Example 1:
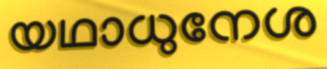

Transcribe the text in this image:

യഥാധുനേശ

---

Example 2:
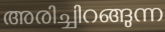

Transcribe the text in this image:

അരിച്ചിറങ്ങുന്ന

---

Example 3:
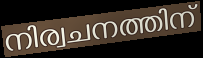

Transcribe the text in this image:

നിര്വചനത്തിന്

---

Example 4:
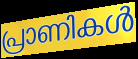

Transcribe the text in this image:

പ്രാണികൾ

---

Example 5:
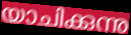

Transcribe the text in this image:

യാചിക്കുന്നു